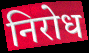
निरोध